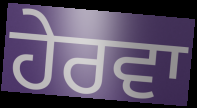
ਹੇਰਵਾ